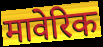
मावेरिक